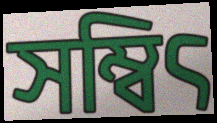
সম্বিৎ